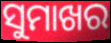
ସୁମାଖର